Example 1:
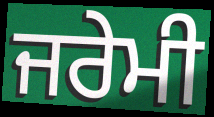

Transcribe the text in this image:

ਜਰੇਮੀ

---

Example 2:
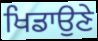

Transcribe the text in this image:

ਖਿਡਾਉਣੇ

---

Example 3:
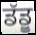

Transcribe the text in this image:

ਡੱਡੂ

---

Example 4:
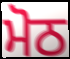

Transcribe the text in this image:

ਮੋਠ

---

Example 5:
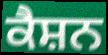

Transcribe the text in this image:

ਕੈਸ਼ਨ